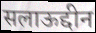
सलाऊद्दीन